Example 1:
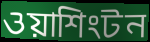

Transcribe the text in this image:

ওয়াশিংটন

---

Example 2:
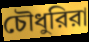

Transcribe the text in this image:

চৌধুরিরা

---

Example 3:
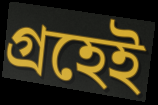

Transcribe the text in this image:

গ্রহেই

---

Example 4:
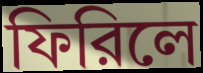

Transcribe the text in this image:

ফিরিলে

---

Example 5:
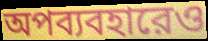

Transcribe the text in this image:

অপব্যবহারেও